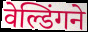
वेल्डिंगने